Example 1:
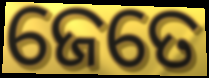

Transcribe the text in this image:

ଜେତେ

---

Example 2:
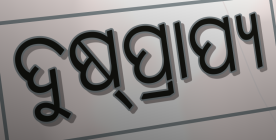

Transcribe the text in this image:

ଦୁଷ୍‌ପ୍ରାପ୍ୟ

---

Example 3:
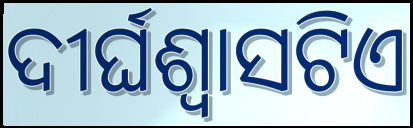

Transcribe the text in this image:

ଦୀର୍ଘଶ୍ୱାସଟିଏ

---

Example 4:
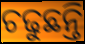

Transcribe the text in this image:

ଚଢୁଛନ୍ତି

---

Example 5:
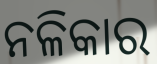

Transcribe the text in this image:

ନଳିକାର